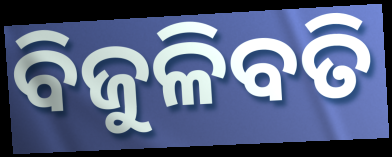
ବିଜୁଳିବତି